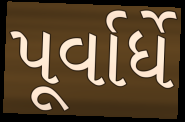
પૂર્વાર્ધે